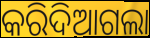
କରିଦିଆଗଲା